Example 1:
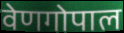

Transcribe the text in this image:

वेणगोपाल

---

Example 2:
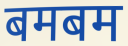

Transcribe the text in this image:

बमबम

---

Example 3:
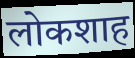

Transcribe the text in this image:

लोकशाह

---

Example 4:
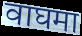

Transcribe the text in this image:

वाघमा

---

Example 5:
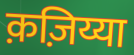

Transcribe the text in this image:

क़ज़िय्या